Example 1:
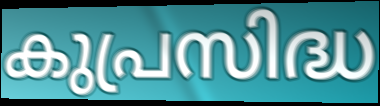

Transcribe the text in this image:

കുപ്രസിദ്ധ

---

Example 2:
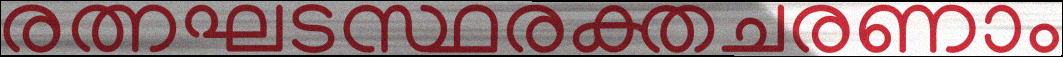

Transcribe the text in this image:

രത്നഘടസ്ഥരക്തചരണാം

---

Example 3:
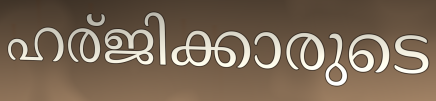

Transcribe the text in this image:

ഹര്ജിക്കാരുടെ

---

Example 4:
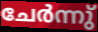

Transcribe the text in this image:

ചേർന്നു്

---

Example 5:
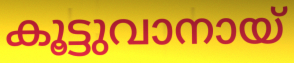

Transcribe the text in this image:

കൂട്ടുവാനായ്